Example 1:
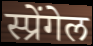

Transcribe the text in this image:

स्प्रेंगेल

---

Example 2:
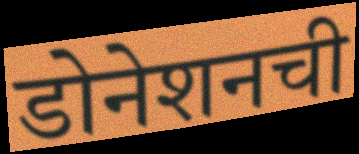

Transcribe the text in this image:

डोनेशनची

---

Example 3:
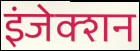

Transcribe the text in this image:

इंजेक्शन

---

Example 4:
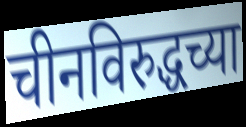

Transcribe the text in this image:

चीनविरुद्धच्या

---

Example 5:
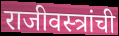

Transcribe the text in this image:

राजीवस्त्रांची